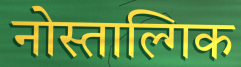
नोस्ताल्गिक